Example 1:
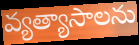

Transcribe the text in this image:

వ్యత్యాసాలను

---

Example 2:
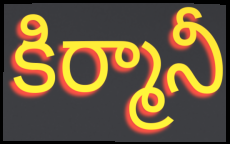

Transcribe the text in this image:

కిర్మానీ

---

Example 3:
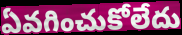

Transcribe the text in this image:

ఏవగించుకోలేదు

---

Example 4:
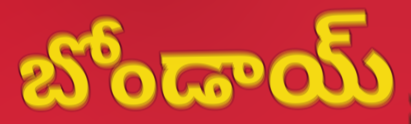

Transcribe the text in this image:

బోండాయ్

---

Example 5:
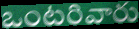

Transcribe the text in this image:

ఒంటరివారు